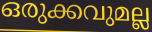
ഒരുക്കവുമല്ല